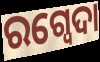
ରଗ୍ବେଦା